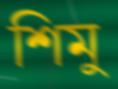
শিমু